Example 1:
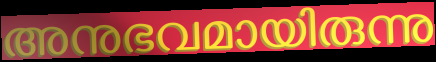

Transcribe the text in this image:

അനുഭവമായിരുന്നു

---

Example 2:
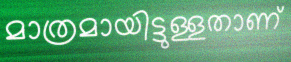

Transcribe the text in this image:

മാത്രമായിട്ടുള്ളതാണ്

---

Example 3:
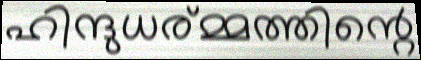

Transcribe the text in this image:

ഹിന്ദുധര്മ്മത്തിന്റെ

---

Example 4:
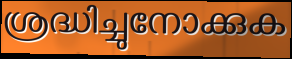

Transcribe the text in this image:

ശ്രദ്ധിച്ചുനോക്കുക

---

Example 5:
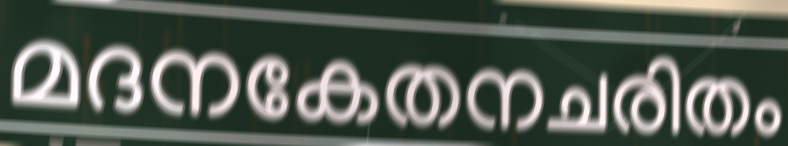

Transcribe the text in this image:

മദനകേതനചരിതം